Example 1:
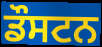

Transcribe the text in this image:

ਡੌਸਟਨ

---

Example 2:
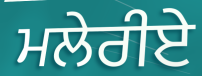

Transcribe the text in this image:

ਮਲੇਰੀਏ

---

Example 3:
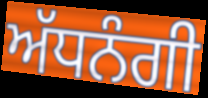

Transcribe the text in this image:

ਅੱਧਨੰਗੀ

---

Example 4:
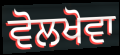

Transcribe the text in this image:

ਵੋਲਖੋਵਾ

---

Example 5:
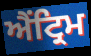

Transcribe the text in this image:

ਐਂਟ੍ਰਿਮ